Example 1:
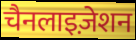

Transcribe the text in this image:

चैनलाइज़ेशन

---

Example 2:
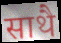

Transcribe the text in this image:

साथै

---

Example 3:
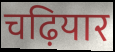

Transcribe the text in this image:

चढ़ियार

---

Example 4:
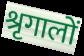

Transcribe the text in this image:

श्रृगालों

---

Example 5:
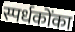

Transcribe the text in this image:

स्पर्धकोंका